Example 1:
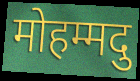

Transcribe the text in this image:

मोहम्मदु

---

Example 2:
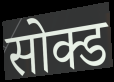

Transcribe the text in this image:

सोक्ड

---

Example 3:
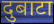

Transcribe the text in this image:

दुबाटा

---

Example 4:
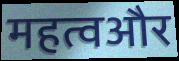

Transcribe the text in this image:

महत्वऔर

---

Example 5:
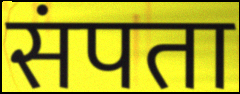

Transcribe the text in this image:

संपता